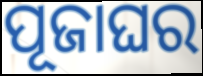
ପୂଜାଘର